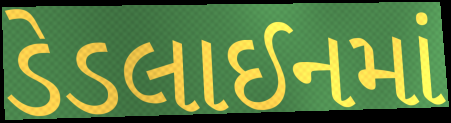
ડેડલાઈનમાં